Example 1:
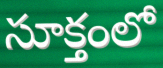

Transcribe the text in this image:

సూక్తంలో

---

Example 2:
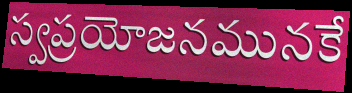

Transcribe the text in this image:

స్వప్రయోజనమునకే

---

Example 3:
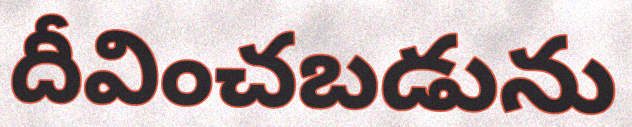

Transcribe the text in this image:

దీవించబడును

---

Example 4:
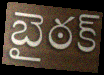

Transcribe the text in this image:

బైఠక్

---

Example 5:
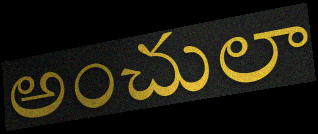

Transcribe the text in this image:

అంచులా